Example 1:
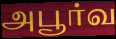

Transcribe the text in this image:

அபூர்வ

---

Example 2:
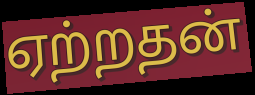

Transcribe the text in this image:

ஏற்றதன்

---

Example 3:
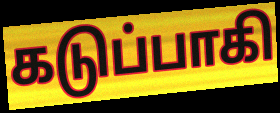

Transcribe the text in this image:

கடுப்பாகி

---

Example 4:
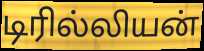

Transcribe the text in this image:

டிரில்லியன்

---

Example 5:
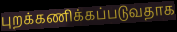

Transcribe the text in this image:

புறக்கணிக்கப்படுவதாக